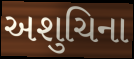
અશુચિના